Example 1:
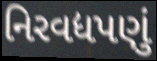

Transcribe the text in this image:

નિરવદ્યપણું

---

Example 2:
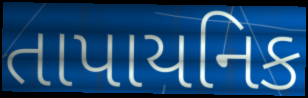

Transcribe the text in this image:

તાપાયનિક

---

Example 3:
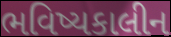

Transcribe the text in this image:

ભવિષ્યકાલીન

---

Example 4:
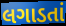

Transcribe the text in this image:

લગાડતાં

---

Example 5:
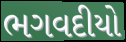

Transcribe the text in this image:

ભગવદીયો